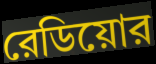
রেডিয়োর